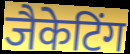
जैकेटिंग